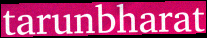
tarunbharat